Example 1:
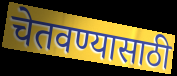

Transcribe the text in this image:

चेतवण्यासाठी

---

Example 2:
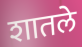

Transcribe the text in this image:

शातले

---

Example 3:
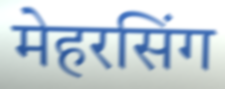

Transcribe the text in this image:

मेहरसिंग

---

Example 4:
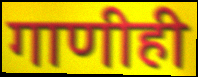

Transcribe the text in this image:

गाणीही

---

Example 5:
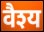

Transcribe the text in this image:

वैश्य